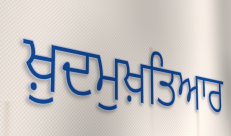
ਖ਼ੁਦਮੁਖ਼ਤਿਆਰ